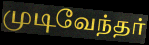
முடிவேந்தர்